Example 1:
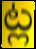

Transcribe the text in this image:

ట్ల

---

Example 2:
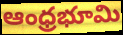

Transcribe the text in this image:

ఆంధ్రభూమి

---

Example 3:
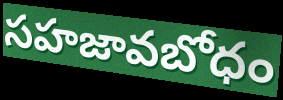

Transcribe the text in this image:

సహజావబోధం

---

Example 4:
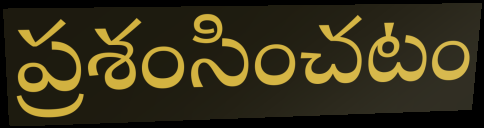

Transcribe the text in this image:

ప్రశంసించటం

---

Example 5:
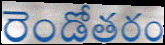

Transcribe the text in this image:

రెండోతరం